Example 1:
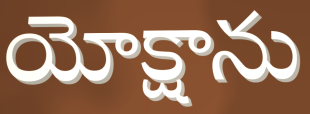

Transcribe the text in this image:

యోక్షాను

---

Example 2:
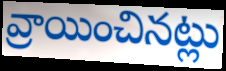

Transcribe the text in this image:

వ్రాయించినట్లు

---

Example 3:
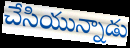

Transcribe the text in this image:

చేసియున్నాడు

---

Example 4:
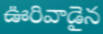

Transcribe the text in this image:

ఊరివాడైన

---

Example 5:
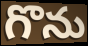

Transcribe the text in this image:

గొను